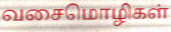
வசைமொழிகள்